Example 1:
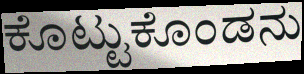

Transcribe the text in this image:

ಕೊಟ್ಟುಕೊಂಡನು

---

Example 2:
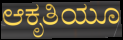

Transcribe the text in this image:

ಆಕೃತಿಯೂ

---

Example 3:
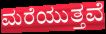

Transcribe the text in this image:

ಮರೆಯುತ್ತವೆ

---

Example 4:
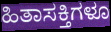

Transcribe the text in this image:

ಹಿತಾಸಕ್ತಿಗಳೂ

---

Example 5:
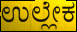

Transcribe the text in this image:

ಉಲ್ಲೇಕ